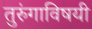
तुरुंगाविषयी